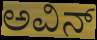
ಅವಿನ್